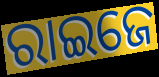
ରାଇଜେ